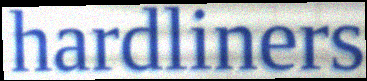
hardliners